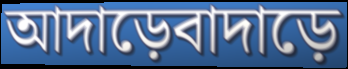
আদাড়েবাদাড়ে